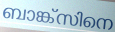
ബാങ്ക്സിനെ